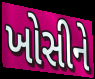
ખોસીને